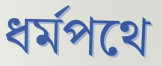
ধর্মপথে